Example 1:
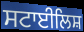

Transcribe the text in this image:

ਸਟਾਈਲਿਸ਼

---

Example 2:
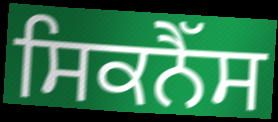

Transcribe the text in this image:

ਸਿਕਨੈੱਸ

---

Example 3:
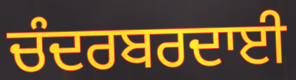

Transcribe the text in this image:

ਚੰਦਰਬਰਦਾਈ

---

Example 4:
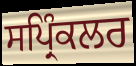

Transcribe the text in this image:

ਸਪ੍ਰਿੰਕਲਰ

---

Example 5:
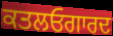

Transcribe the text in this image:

ਕਤਲਓਗਾਰਦ